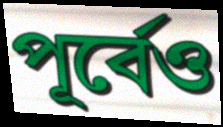
পূৰ্বেও